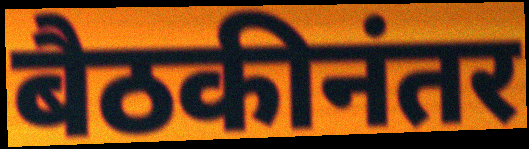
बैठकीनंतर